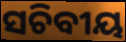
ସଚିବୀୟ